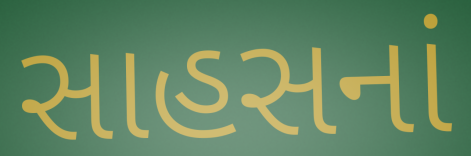
સાહસનાં